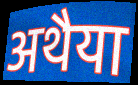
अथैया